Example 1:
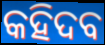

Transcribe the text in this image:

କହିଦବ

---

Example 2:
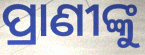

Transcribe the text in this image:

ପ୍ରାଣୀଙ୍କୁ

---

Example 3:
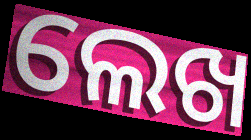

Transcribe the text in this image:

ଲେଖ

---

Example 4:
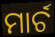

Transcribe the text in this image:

ମାର୍ଚ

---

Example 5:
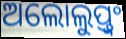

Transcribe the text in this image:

ଅଲୋଲୁପ୍ତ୍ୱଂ